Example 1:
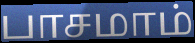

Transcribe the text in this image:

பாசமாம்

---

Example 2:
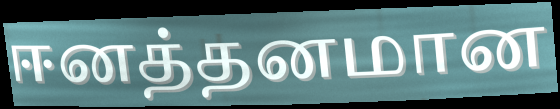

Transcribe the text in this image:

ஈனத்தனமான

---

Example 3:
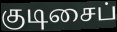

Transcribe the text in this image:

குடிசைப்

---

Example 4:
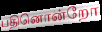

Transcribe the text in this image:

பதினொன்றோ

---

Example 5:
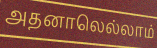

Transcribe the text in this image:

அதனாலெல்லாம்